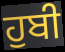
ਹੁਬੀ